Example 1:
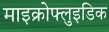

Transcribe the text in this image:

माइक्रोफ्लुइडिक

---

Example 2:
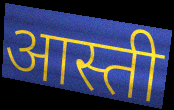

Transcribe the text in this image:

आस्ती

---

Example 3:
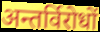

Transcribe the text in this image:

अन्तर्विरोधों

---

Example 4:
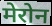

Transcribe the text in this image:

मेरोन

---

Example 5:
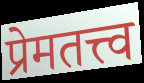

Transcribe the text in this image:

प्रेमतत्त्व